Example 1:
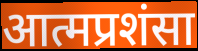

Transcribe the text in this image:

आत्मप्रशंसा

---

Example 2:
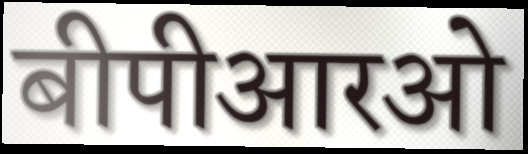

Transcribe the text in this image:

बीपीआरओ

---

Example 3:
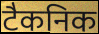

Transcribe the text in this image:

टैकनिक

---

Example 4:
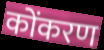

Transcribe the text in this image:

कोंकरण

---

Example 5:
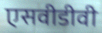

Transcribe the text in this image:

एसवीडीवी